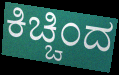
ಕಿಚ್ಚಿಂದ